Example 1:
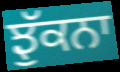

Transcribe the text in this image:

ਝੁੱਕਨਾ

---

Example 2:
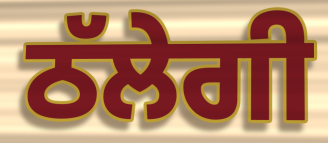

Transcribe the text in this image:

ਠੱਲੇਗੀ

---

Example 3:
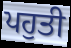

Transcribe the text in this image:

ਪਹੁਤੀ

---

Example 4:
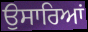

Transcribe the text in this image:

ਉਸਾਰਿਆਂ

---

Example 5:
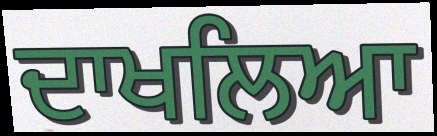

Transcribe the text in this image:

ਦਾਖਲਿਆ